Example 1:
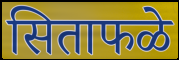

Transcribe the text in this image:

सिताफळे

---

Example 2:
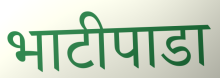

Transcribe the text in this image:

भाटीपाडा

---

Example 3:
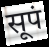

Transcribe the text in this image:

सूपं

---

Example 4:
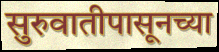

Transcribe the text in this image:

सुरुवातीपासूनच्या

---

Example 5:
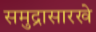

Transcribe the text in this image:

समुद्रासारखे